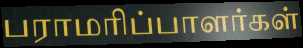
பராமரிப்பாளர்கள்